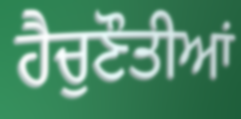
ਹੈਚੁਣੌਤੀਆਂ